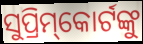
ସୁପ୍ରିମ୍‌କୋର୍ଟଙ୍କୁ